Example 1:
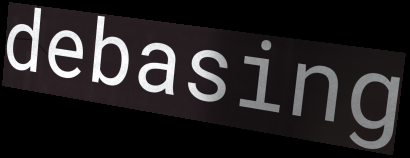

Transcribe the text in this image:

debasing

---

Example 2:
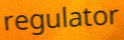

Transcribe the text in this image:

regulator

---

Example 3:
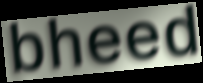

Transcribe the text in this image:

bheed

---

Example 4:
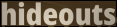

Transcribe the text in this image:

hideouts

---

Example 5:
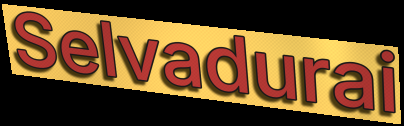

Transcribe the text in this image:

Selvadurai